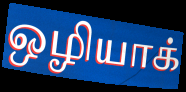
ஒழியாக்